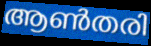
ആൺതരി